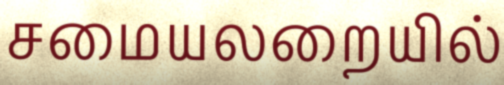
சமையலறையில்